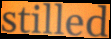
stilled